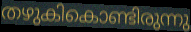
തഴുകികൊണ്ടിരുന്നു